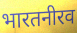
भारतनीरव